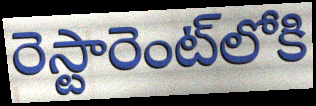
రెస్టారెంట్‌లోకి